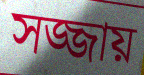
সজ্জায়